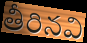
తీరినవి